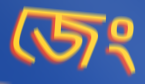
জেং